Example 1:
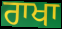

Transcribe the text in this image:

ਰਾਖਾ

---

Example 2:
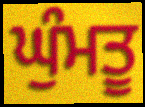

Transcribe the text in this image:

ਘੁੰਮਤੂ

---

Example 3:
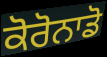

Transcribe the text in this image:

ਕੋਰੋਨਾਡੋ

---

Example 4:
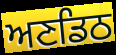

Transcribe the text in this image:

ਅਣਡਿਠ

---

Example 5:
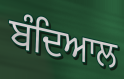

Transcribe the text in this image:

ਬੰਦਿਆਲ